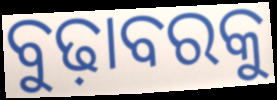
ବୁଢ଼ାବରକୁ